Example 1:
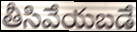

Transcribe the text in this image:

తీసివేయబడే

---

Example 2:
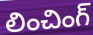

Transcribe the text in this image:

లించింగ్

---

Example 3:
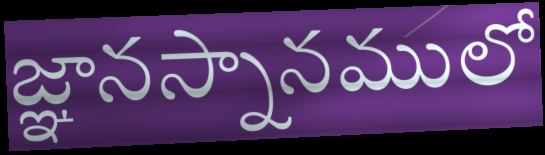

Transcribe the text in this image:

జ్ఞానస్నానములో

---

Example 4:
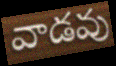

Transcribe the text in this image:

వాడవు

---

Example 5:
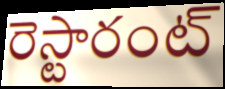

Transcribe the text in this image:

రెస్టారంట్